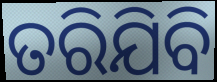
ତରିଯିବି